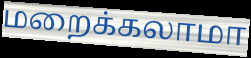
மறைக்கலாமா